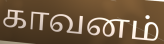
காவனம்